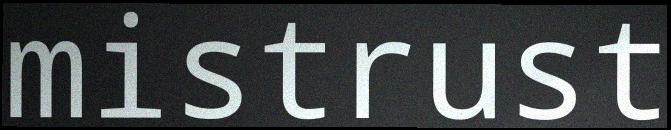
mistrust